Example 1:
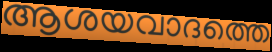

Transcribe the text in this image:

ആശയവാദത്തെ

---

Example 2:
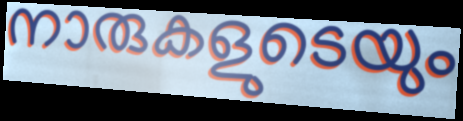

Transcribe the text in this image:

നാരുകളുടെയും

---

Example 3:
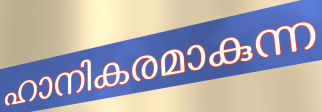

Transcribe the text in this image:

ഹാനികരമാകുന്ന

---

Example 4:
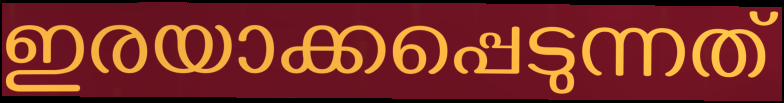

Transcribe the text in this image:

ഇരയാക്കപ്പെടുന്നത്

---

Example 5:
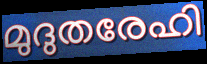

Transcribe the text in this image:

മുദുതരേഹി